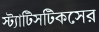
স্ট্যাটিসটিকসের